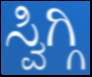
ಸ್ವಿಗ್ಗಿ